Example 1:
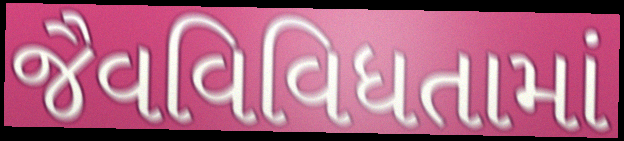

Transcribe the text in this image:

જૈવવિવિધતામાં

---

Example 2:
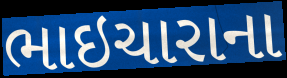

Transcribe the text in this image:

ભાઇચારાના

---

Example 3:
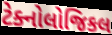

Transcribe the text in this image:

ટેક્નોલોજિકલ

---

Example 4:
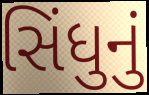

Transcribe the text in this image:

સિંધુનું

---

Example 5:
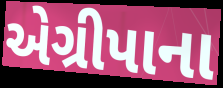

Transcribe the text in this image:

એગ્રીપાના